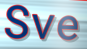
Sve